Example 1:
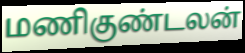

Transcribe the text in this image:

மணிகுண்டலன்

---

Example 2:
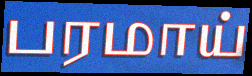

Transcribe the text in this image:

பரமாய்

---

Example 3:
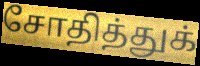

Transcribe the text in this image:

சோதித்துக்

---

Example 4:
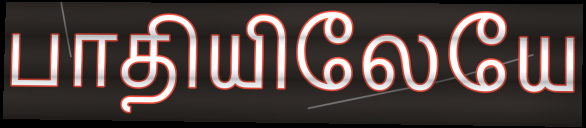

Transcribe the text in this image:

பாதியிலேயே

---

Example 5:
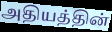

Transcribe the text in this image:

அதியத்தின்